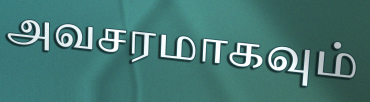
அவசரமாகவும்